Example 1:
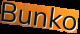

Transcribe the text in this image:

Bunko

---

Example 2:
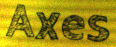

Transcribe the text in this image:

Axes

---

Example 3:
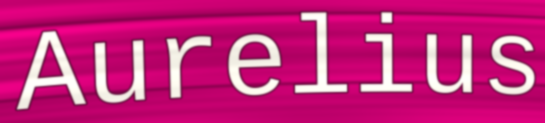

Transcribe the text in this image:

Aurelius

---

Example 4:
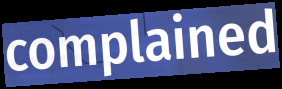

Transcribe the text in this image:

complained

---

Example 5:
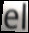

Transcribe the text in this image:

el